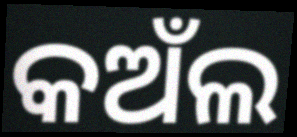
କଅଁଲ